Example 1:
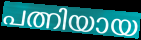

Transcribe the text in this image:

പത്നിയായ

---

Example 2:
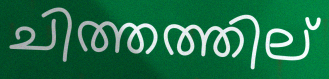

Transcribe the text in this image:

ചിത്തത്തില്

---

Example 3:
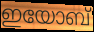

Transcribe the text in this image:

ഇയോബ്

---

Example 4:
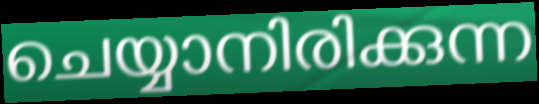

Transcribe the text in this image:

ചെയ്യാനിരിക്കുന്ന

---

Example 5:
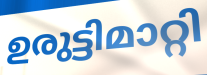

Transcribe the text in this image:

ഉരുട്ടിമാറ്റി